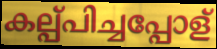
കല്പ്പിച്ചപ്പോള്